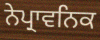
ਨੇਪ੍ਰਾਵਨਿਕ